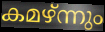
കമഴ്ന്നും